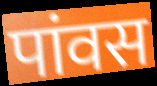
पांवस